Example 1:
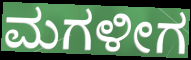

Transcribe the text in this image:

ಮಗಳೀಗ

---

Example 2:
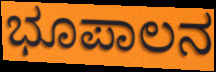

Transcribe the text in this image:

ಭೂಪಾಲನ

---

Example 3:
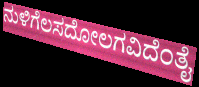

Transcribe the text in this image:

ನುಳಿಗೆಲಸದೋಲಗವಿದೆಂತೈ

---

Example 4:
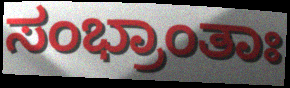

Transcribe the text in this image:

ಸಂಭ್ರಾಂತಾಃ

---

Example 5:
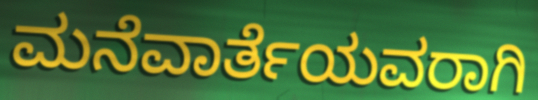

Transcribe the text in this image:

ಮನೆವಾರ್ತೆಯವರಾಗಿ